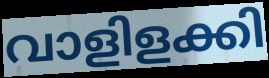
വാളിളക്കി